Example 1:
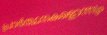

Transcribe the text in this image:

പ്രാർത്ഥനകളൊന്നും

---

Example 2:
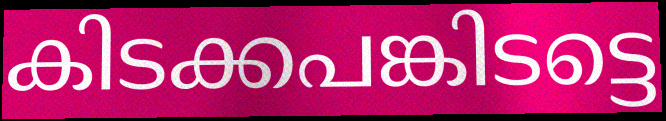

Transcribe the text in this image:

കിടക്കപങ്കിടട്ടെ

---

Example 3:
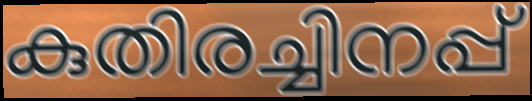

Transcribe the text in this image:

കുതിരച്ചിനപ്പ്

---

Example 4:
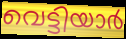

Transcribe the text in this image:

വെട്ടിയാർ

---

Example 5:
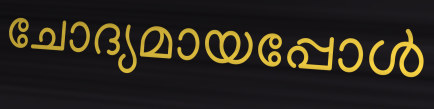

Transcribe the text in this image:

ചോദ്യമായപ്പോൾ